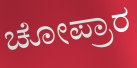
ಚೋಪ್ರಾರ